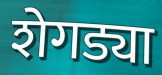
शेगड्या